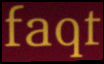
faqt